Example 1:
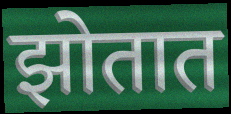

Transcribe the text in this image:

झोतात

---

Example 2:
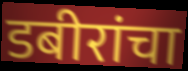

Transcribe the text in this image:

डबीरांचा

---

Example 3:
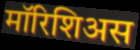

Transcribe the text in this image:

मॉरिशिअस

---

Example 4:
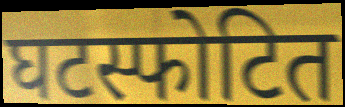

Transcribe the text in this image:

घटस्फोटित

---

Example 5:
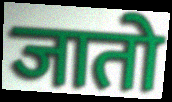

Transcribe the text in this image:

जातो